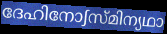
ദേഹിനോഽസ്മിന്യഥാ